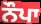
ਨੌਪਾ